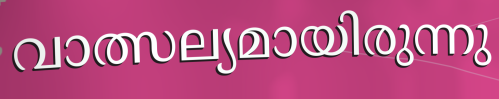
വാത്സല്യമായിരുന്നു